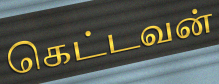
கெட்டவன்